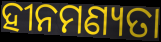
ହୀନମଣ୍ୟତା